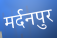
मर्दनपुर